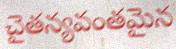
చైతన్యవంతమైన